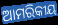
ଆମରିକୀୟ